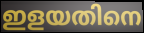
ഇളയതിനെ